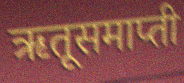
ऋतूसमाप्ती